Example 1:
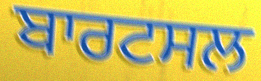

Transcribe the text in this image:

ਬਾਰਟਸਲ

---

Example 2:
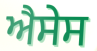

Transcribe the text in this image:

ਐਸੇਸ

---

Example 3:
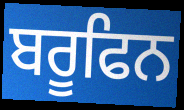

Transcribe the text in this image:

ਬਰੂਫਿਨ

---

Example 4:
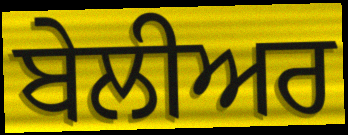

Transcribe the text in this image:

ਬੇਲੀਅਰ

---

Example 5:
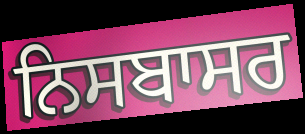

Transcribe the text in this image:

ਨਿਸਬਾਸਰ